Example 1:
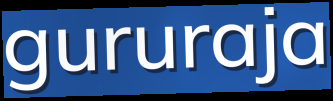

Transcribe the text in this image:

gururaja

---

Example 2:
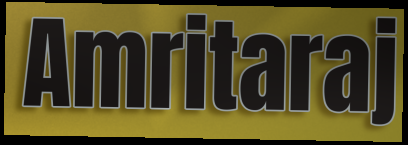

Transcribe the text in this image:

Amritaraj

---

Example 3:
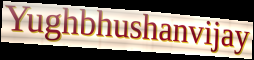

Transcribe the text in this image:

Yughbhushanvijay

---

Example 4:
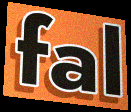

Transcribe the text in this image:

fal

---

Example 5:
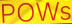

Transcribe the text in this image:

POWs